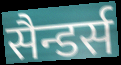
सैन्डर्स